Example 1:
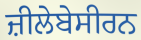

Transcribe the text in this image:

ਜ਼ੀਲੇਬੇਸੀਰਨ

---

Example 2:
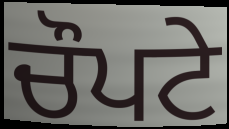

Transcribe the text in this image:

ਚੌਪਟੇ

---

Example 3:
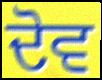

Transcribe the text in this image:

ਦੋਵ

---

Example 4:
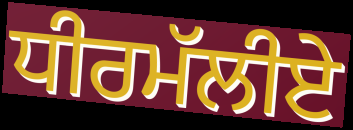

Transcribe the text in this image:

ਧੀਰਮੱਲੀਏ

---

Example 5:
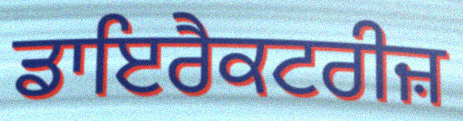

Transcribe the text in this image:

ਡਾਇਰੈਕਟਰੀਜ਼